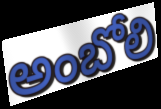
అంబోలి